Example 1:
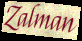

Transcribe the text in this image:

Zalman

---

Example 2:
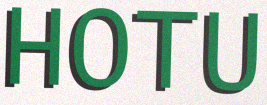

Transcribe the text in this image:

HOTU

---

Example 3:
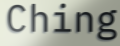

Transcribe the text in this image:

Ching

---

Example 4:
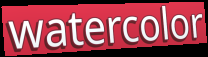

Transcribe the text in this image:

watercolor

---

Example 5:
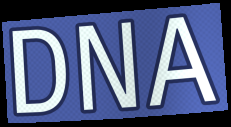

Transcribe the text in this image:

DNA